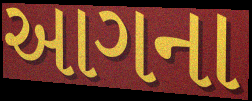
આગના